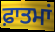
ਫ਼ਾਤਮਾਂ